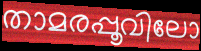
താമരപ്പൂവിലോ